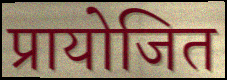
प्रायोजित